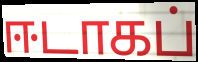
ஈடாகப்